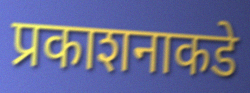
प्रकाशनाकडे